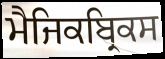
ਮੈਜਿਕਬ੍ਰਿਕਸ